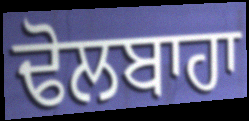
ਢੋਲਬਾਹਾ